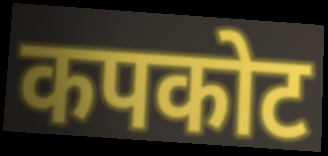
कपकोट